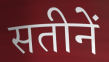
सतीनें